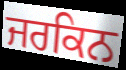
ਜਰਕਿਨ